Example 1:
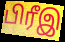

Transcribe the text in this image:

பிரீஇ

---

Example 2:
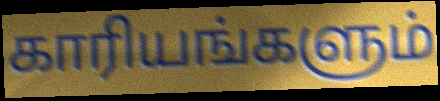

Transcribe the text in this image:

காரியங்களும்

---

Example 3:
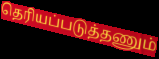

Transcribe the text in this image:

தெரியப்படுத்தணும்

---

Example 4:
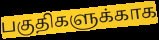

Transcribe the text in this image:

பகுதிகளுக்காக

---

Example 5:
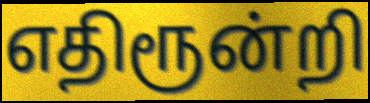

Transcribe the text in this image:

எதிரூன்றி